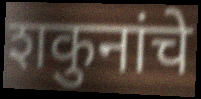
शकुनांचे